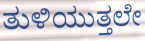
ತುಳಿಯುತ್ತಲೇ